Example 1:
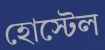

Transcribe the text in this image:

হোস্টেল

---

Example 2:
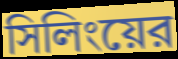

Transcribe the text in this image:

সিলিংয়ের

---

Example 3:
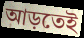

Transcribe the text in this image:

আড়তেই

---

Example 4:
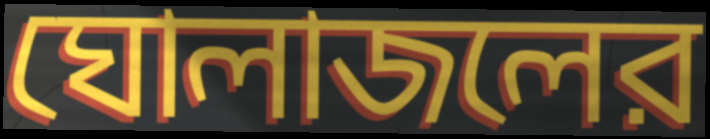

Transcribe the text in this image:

ঘোলাজলের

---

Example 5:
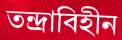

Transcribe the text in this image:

তন্দ্রাবিহীন